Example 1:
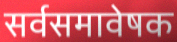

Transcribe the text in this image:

सर्वसमावेषक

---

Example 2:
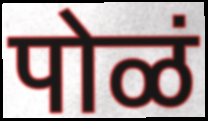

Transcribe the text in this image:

पोळं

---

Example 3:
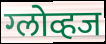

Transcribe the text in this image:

ग्लोव्हज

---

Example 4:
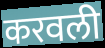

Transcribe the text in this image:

करवली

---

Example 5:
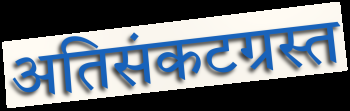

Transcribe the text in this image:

अतिसंकटग्रस्त